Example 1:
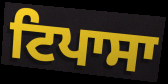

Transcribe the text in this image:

ਟਿਪਾਸਾ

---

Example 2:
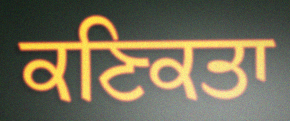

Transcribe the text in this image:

ਕਣਿਕਤਾ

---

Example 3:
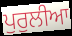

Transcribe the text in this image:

ਪੁਰੁਲੀਆ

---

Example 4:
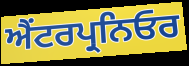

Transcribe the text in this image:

ਐਂਟਰਪ੍ਰਨਿਓਰ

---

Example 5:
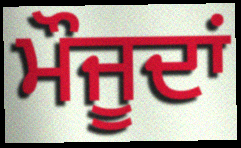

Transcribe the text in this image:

ਮੌਜੂਦਾਂ